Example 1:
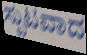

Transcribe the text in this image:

ಸ್ಪುಟವಾದ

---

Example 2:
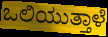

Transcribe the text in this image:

ಒಲಿಯುತ್ತಾಳೆ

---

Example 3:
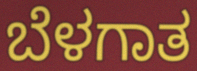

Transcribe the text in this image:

ಬೆಳಗಾತ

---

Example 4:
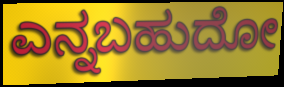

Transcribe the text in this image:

ಎನ್ನಬಹುದೋ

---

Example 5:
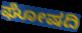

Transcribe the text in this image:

ಘೋಷದಿ